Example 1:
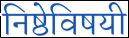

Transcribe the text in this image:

निष्ठेविषयी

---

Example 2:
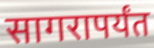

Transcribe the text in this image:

सागरापर्यंत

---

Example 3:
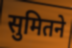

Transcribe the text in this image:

सुमितने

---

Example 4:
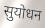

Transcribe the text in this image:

सुयोधन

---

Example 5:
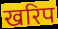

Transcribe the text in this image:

खरिप